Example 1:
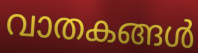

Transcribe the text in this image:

വാതകങ്ങൾ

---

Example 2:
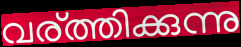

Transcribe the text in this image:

വര്ത്തിക്കുന്നു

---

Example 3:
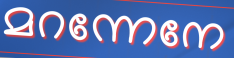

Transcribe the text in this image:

മറന്നേനേ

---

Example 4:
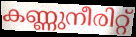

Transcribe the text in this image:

കണ്ണുനീരിറ്റ്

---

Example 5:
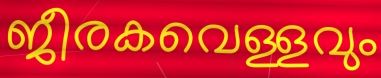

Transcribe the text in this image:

ജീരകവെള്ളവും